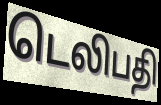
டெலிபதி